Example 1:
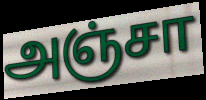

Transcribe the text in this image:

அஞ்சா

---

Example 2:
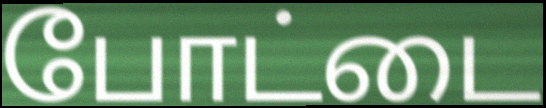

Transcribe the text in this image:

போட்டை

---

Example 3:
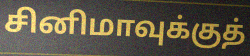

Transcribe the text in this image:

சினிமாவுக்குத்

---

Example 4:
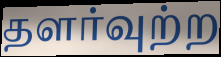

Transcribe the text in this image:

தளர்வுற்ற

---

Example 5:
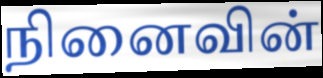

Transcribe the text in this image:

நினைவின்